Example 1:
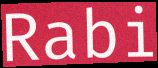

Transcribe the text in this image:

Rabi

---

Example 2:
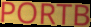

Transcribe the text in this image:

PORTB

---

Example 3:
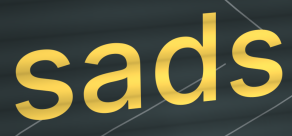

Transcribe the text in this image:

sads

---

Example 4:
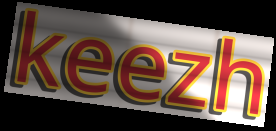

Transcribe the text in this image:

keezh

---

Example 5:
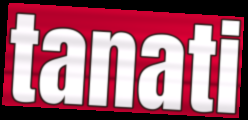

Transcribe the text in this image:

tanati